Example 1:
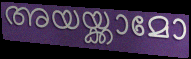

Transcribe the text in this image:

അയയ്ക്കാമോ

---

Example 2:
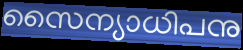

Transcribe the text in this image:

സൈന്യാധിപനു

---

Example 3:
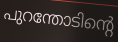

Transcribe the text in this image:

പുറന്തോടിന്റെ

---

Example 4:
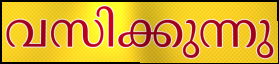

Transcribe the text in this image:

വസിക്കുന്നു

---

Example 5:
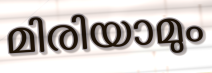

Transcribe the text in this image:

മിരിയാമും